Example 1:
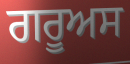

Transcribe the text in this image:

ਗਰੂਅਸ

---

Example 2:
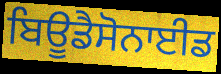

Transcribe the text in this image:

ਬਿਊਡੈਸੋਨਾਈਡ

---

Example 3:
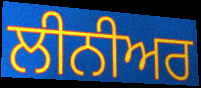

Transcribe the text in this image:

ਲੀਨੀਅਰ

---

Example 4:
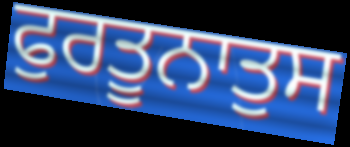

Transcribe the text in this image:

ਫੁਰਤੂਨਾਤੁਸ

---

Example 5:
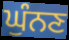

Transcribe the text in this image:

ਘੁੰਨਣ